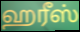
ஹரீஸ்